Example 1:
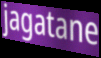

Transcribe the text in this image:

jagatane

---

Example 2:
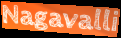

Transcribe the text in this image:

Nagavalli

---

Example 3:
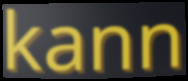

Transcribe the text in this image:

kann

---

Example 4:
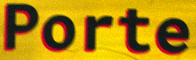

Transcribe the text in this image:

Porte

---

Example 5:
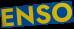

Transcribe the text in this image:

ENSO